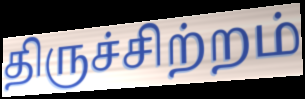
திருச்சிற்றம்